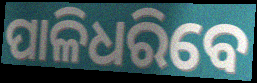
ପାଳିଧରିବେ